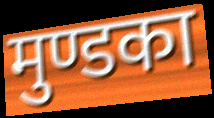
मुण्डका